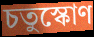
চতুস্কোণ